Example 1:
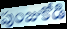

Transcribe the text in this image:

పుంజుకోడి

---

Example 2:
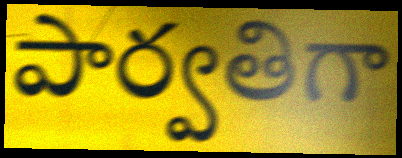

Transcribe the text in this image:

పార్వతిగా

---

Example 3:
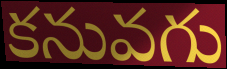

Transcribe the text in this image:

కనువగు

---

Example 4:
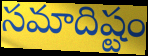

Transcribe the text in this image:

సమాదిష్టం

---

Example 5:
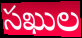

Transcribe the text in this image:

సఖుల